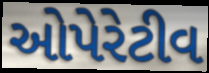
ઓપેરેટીવ